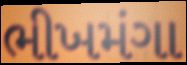
ભીખમંગા